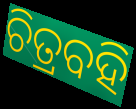
ଚିତ୍ରବହି